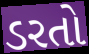
ડરતો